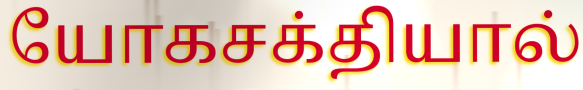
யோகசக்தியால்